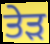
ਤੇੜ